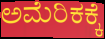
ಅಮೆರಿಕಕ್ಕೆ